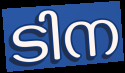
ടിന